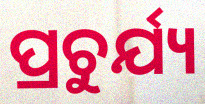
ପ୍ରଚୁର୍ଯ୍ୟ